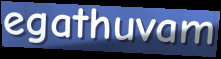
egathuvam